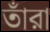
তাঁরা